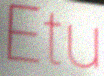
Etu